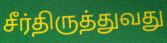
சீர்திருத்துவது